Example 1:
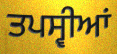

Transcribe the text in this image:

ਤਪਸ੍ਵੀਆਂ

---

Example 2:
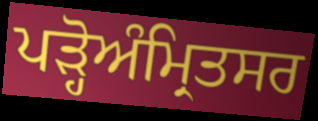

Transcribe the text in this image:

ਪੜ੍ਹੋਅੰਮ੍ਰਿਤਸਰ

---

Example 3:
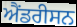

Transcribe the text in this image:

ਐਂਡਰੀਸਨ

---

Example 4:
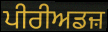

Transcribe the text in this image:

ਪੀਰੀਅਡਜ਼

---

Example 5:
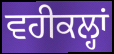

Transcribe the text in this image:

ਵਹੀਕਲ੍ਹਾਂ